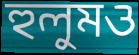
হুলুমও